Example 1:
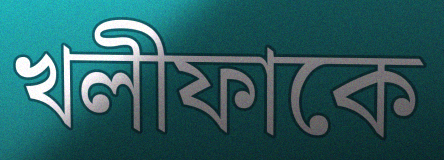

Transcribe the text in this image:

খলীফাকে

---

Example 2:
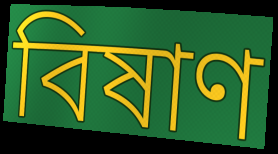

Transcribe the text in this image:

বিষাণ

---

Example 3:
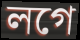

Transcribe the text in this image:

লগে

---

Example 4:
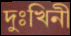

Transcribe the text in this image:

দুঃখিনী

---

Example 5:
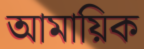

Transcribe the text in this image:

আমায়িক